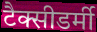
टैक्सीडर्मी